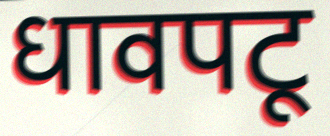
धावपटू